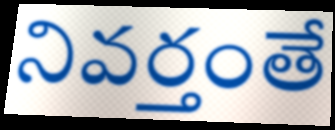
నివర్తంతే